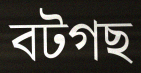
বটগছ